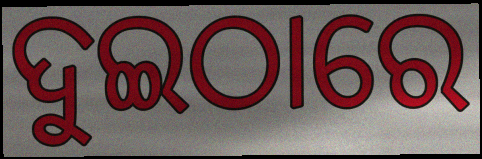
ଦୁଇଠାରେ